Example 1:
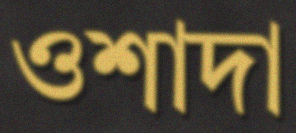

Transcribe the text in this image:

ওশাদা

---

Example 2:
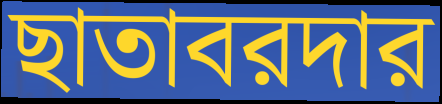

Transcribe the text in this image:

ছাতাবরদার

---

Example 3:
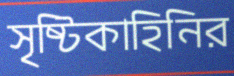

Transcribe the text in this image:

সৃষ্টিকাহিনির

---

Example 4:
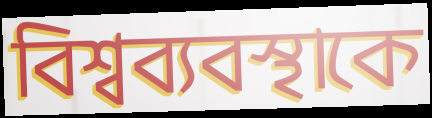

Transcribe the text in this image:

বিশ্বব্যবস্থাকে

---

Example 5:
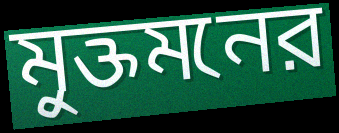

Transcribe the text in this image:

মুক্তমনের